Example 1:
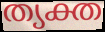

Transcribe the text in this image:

ത്യക്ത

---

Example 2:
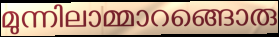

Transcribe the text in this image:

മുന്നിലാമ്മാറങ്ങൊരു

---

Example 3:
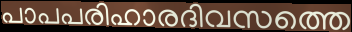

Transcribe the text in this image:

പാപപരിഹാരദിവസത്തെ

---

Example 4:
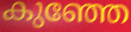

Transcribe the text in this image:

കുഞ്ഞേ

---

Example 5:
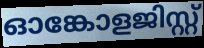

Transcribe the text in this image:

ഓങ്കോളജിസ്റ്റ്